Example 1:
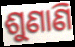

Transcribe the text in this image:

ଶୁଣାଣି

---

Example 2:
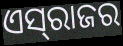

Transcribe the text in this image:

ଏସ୍‍ରାଜର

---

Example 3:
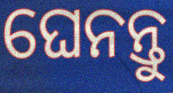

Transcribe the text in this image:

ଘେନନ୍ତୁ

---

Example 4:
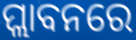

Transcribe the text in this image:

ପ୍ଲାବନରେ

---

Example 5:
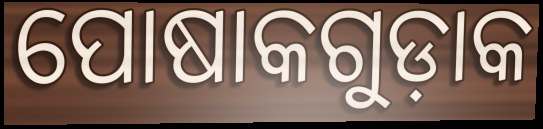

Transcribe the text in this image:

ପୋଷାକଗୁଡ଼ାକ